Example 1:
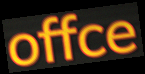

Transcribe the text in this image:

offce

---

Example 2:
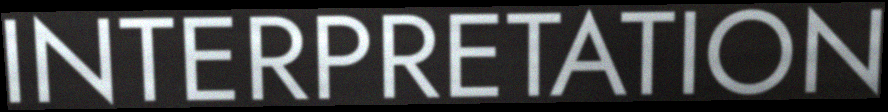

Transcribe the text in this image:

INTERPRETATION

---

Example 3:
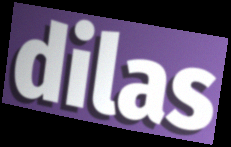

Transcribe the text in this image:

dilas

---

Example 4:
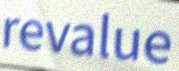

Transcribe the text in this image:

revalue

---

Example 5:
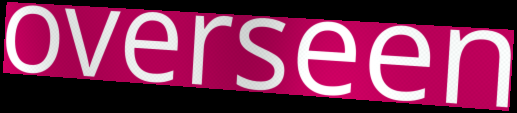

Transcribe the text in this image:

overseen